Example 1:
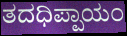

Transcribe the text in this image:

ತದಧಿಪ್ಪಾಯಂ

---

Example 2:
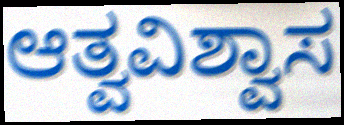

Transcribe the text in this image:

ಆತ್ವವಿಶ್ವಾಸ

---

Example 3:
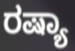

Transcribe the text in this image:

ರಷ್ಯಾ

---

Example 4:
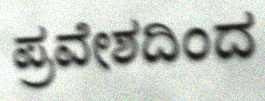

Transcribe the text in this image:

ಪ್ರವೇಶದಿಂದ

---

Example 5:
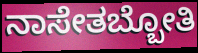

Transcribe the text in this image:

ನಾಸೇತಬ್ಬೋತಿ